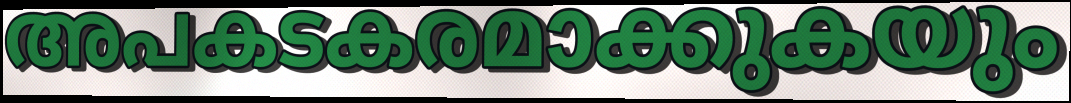
അപകടകരമാക്കുകയും